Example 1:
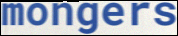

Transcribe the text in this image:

mongers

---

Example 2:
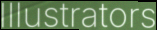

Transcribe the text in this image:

Illustrators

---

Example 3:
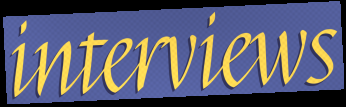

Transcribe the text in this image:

interviews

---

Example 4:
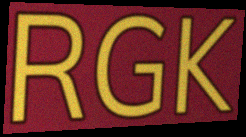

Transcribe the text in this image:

RGK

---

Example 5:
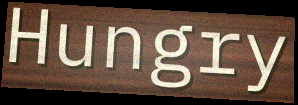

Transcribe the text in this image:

Hungry